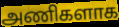
அணிகளாக